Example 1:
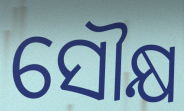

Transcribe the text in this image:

ସୌକ୍ଷ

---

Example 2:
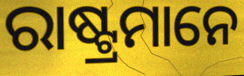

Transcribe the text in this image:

ରାଷ୍ଟ୍ରମାନେ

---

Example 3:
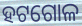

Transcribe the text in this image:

ହଟଗୋଳ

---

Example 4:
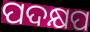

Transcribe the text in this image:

ପଦକ୍ଷପ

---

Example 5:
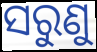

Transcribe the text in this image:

ସରୁଣୁ